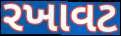
રખાવટ